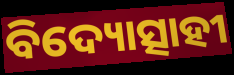
ବିଦ୍ୟୋତ୍ସାହୀ